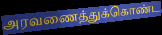
அரவணைத்துக்கொண்ட